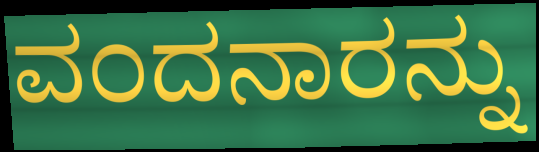
ವಂದನಾರನ್ನು